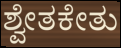
ಶ್ವೇತಕೇತು